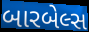
બારબેલ્સ